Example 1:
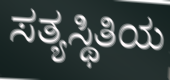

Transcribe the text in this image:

ಸತ್ಯಸ್ಥಿತಿಯ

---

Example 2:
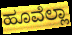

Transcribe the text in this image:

ಹೂವೆಲ್ಲಾ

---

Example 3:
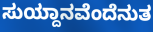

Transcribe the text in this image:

ಸುಯ್ದಾನವೆಂದೆನುತ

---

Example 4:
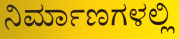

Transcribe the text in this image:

ನಿರ್ಮಾಣಗಳಲ್ಲಿ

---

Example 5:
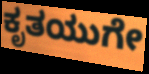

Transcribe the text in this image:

ಕೃತಯುಗೇ